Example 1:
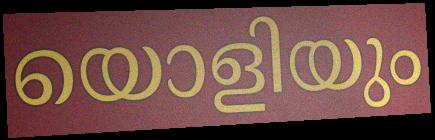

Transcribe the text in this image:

യൊളിയും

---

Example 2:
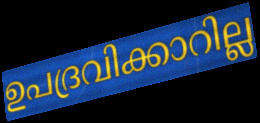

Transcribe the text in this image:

ഉപദ്രവിക്കാറില്ല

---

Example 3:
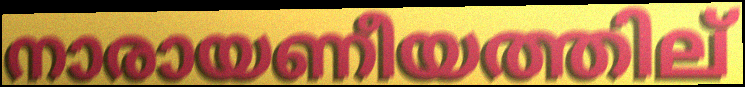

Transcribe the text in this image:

നാരായണീയത്തില്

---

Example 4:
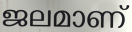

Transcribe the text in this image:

ജലമാണ്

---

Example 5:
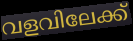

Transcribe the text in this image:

വളവിലേക്ക്